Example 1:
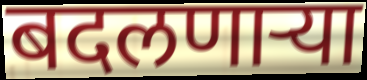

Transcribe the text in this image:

बदलणार्‍या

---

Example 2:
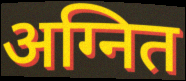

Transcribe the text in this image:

अग्नित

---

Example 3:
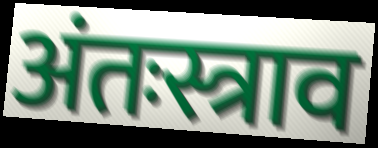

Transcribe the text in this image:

अंतःस्त्राव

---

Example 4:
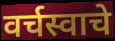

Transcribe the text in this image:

वर्चस्वाचे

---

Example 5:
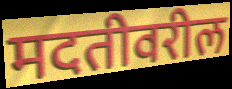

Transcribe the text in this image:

मदतीवरील